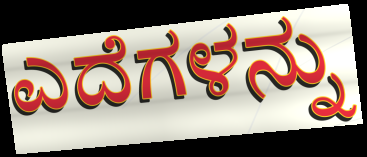
ಎದೆಗಳನ್ನು